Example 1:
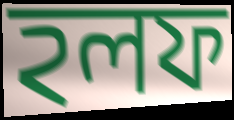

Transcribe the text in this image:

হলফ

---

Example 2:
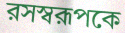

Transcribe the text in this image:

রসস্বরূপকে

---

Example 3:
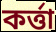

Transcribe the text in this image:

কর্ত্তা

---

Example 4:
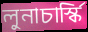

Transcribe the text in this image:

লুনাচার্স্কি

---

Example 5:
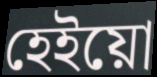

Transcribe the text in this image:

হেইয়ো